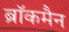
ब्रॉकमैन